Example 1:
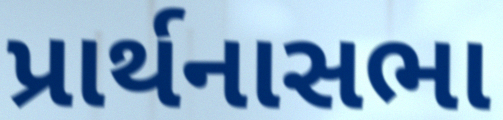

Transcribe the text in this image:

પ્રાર્થનાસભા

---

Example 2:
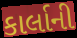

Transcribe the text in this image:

કાર્લાની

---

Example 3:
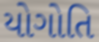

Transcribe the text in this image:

યોગોતિ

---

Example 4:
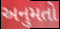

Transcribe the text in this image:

અનુમતો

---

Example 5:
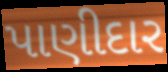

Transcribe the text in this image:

પાણીદાર